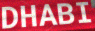
DHABI